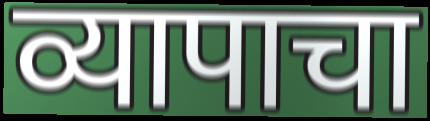
व्यापाचा